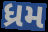
ધ્રમ